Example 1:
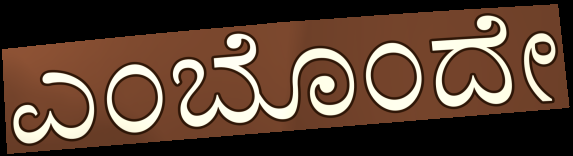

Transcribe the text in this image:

ಎಂಬೊಂದೇ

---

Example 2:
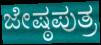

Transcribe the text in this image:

ಜೇಷ್ಠಪುತ್ರ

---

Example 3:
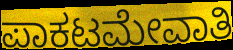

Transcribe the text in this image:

ಪಾಕಟಮೇವಾತಿ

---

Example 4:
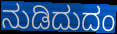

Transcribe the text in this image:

ನುಡಿದುದಂ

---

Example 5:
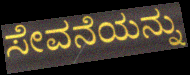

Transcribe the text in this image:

ಸೇವನೆಯನ್ನು